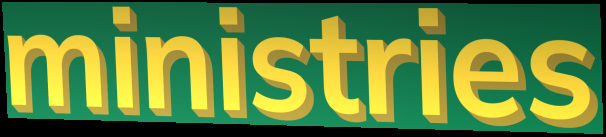
ministries